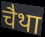
चैथा